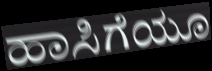
ಹಾಸಿಗೆಯೂ